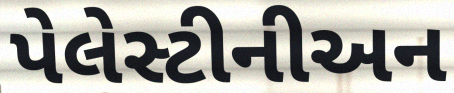
પેલેસ્ટીનીઅન